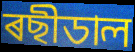
ৰছীডাল